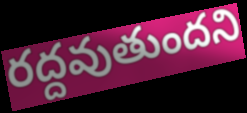
రద్దవుతుందని